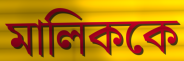
মালিককে